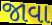
જાવા